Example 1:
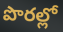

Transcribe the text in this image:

పొరల్లో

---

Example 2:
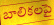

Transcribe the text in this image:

బాలికలపై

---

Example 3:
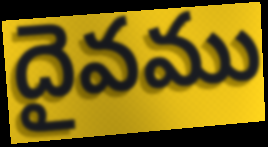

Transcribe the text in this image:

దైవము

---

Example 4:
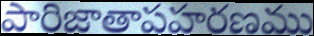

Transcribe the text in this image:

పారిజాతాపహరణము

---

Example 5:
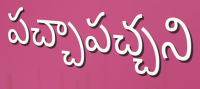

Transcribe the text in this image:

పచ్చాపచ్చని